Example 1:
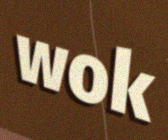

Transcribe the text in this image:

wok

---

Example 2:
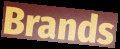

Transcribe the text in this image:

Brands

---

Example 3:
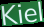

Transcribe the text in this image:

Kiel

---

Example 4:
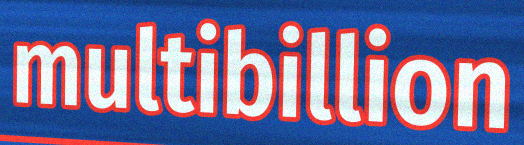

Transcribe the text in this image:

multibillion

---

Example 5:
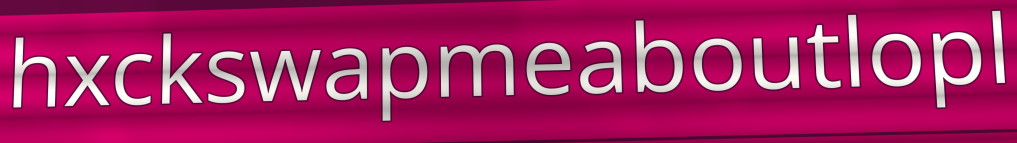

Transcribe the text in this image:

hxckswapmeaboutlopl